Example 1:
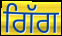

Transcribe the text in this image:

ਗਿੱਗ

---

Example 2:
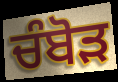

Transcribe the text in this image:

ਚੰਬੋੜ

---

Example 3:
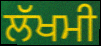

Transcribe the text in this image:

ਲੱਖਮੀ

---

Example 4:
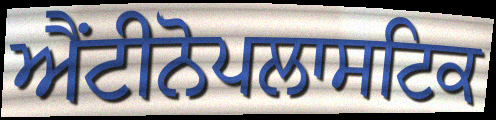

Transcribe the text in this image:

ਐਂਟੀਨੋਪਲਾਸਟਿਕ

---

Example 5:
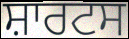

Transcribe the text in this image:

ਸ਼ਾਰਟਸ